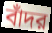
বাঁদর